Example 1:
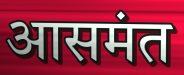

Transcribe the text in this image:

आसमंत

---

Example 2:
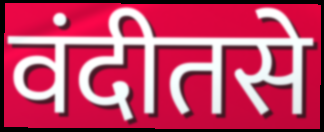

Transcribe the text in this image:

वंदीतसे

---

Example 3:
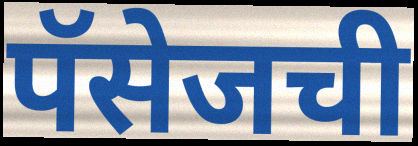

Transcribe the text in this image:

पॅसेजची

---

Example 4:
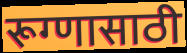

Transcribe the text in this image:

रूग्णासाठी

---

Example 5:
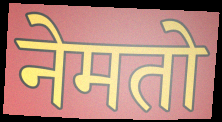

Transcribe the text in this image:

नेमतो